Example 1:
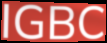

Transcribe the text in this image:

IGBC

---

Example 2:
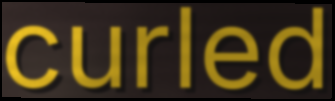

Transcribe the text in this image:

curled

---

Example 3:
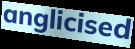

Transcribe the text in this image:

anglicised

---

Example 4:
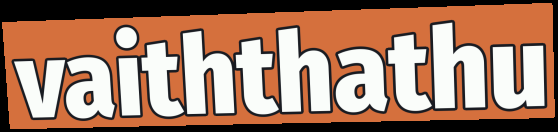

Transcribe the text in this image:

vaiththathu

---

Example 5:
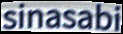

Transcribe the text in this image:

sinasabi